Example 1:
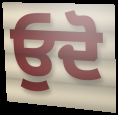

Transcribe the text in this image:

ਓੁਦੋ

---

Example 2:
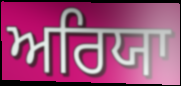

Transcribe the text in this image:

ਅਰਿਯਾ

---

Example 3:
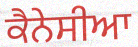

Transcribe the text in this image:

ਕੈਨੇਸੀਆ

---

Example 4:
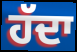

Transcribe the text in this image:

ਹੱਦਾ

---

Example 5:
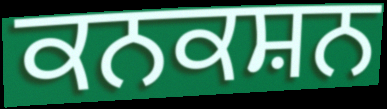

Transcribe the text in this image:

ਕਨਕਸ਼ਨ